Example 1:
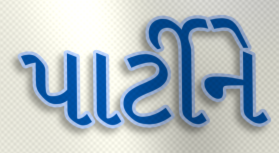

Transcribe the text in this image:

પાર્ટીને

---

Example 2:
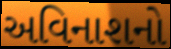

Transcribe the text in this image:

અવિનાશનો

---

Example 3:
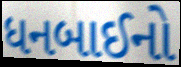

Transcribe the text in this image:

ધનબાઈનો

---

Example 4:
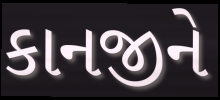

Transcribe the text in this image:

કાનજીને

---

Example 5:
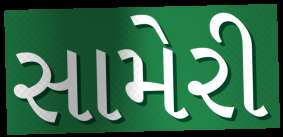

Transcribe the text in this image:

સામેરી